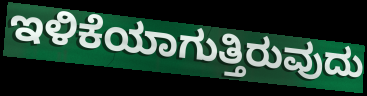
ಇಳಿಕೆಯಾಗುತ್ತಿರುವುದು